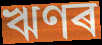
ঋণৰ